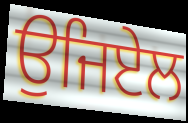
ਉਜਿਏਲ